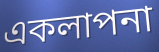
একলাপনা